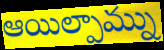
ఆయిల్పామ్ను